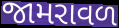
જામરાવળ